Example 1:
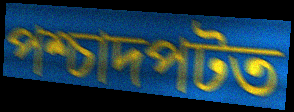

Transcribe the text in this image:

পশ্চাদপটত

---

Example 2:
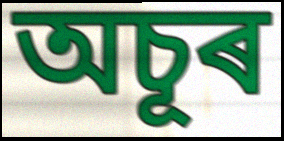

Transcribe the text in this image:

অচূৰ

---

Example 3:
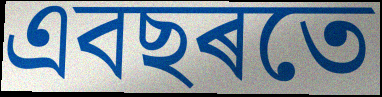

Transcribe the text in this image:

এবছৰতে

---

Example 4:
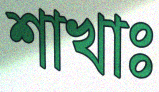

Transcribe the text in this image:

শাখাঃ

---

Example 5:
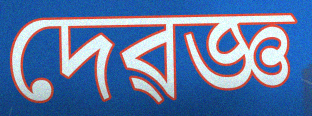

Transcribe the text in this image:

দেৱজ্ঞ